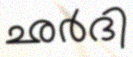
ഛർദി